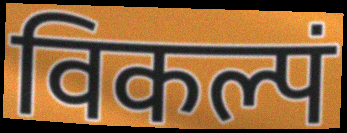
विकल्पं